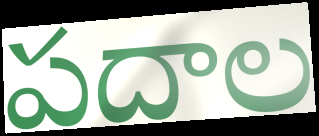
పదాల